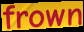
frown